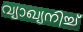
വ്യാഖ്യനിച്ച്